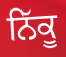
ਨਿੱਕੂ